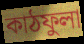
কাঠফুলা